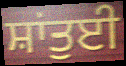
ਸ਼ਾਂਤੁਈ